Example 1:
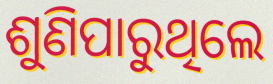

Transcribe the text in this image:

ଶୁଣିପାରୁଥିଲେ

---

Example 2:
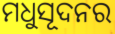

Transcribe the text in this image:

ମଧୁସୂଦନର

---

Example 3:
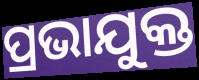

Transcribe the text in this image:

ପ୍ରଭାଯୁକ୍ତ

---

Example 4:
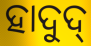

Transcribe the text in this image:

ହାଦୁଦ୍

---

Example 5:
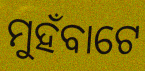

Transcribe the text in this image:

ମୁହଁବାଟେ